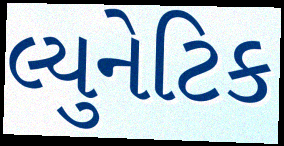
લ્યુનેટિક